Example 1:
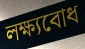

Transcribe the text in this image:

লক্ষ্যবোধ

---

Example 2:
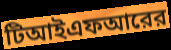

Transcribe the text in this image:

টিআইএফআরের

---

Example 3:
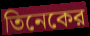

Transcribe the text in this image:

তিনেকের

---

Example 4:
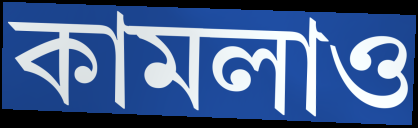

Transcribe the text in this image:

কামলাও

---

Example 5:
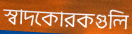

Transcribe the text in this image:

স্বাদকোরকগুলি